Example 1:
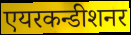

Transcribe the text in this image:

एयरकन्डीशनर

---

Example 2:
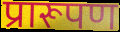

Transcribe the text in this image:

प्रारूपण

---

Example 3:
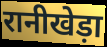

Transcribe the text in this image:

रानीखेड़ा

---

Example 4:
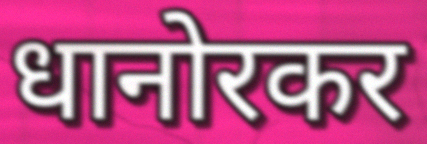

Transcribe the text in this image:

धानोरकर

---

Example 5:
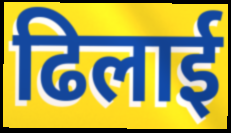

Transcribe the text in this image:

ढिलाई